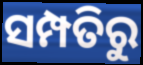
ସମ୍ପତିରୁ